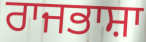
ਰਾਜਭਾਸ਼ਾ